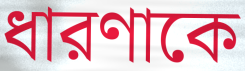
ধারণাকে